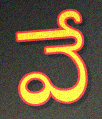
వే